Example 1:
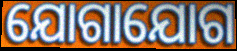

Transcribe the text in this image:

ଯୋଗାଯୋଗ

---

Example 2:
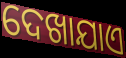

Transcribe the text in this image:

ଦେଖାଯାଏ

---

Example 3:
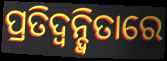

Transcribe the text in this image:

ପ୍ରତିଦ୍ୱନ୍ଦ୍ବିତାରେ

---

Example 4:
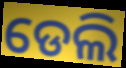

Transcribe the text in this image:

ଡେଲି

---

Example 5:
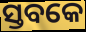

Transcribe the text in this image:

ସ୍ତବକେ